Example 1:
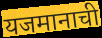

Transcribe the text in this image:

यजमानाची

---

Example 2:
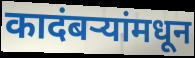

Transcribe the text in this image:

कादंबर्‍यांमधून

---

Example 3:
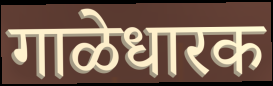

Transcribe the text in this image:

गाळेधारक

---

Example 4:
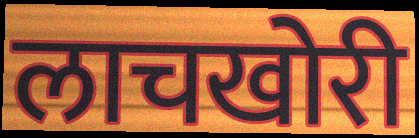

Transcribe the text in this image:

लाचखोरी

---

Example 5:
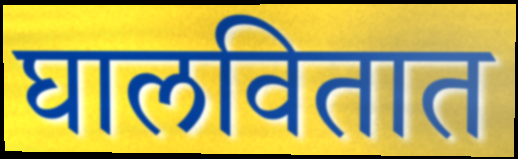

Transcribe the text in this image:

घालवितात